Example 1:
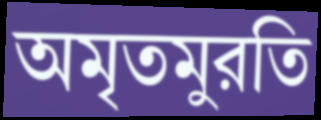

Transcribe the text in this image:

অমৃতমুরতি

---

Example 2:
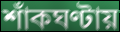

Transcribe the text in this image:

শাঁকঘণ্টায়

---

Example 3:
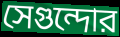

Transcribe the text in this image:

সেগুন্দোর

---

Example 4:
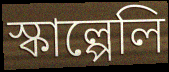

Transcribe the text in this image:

স্কাল্পেলি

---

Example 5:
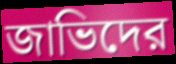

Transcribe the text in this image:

জাভিদের